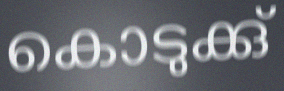
കൊടുക്കു്